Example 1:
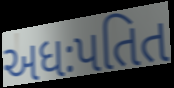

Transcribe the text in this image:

અધઃપતિત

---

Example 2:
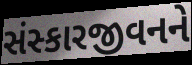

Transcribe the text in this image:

સંસ્કારજીવનને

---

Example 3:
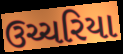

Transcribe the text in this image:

ઉચ્ચરિયા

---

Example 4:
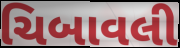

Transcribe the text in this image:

ચિબાવલી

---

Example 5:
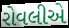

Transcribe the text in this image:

રોવલીએ